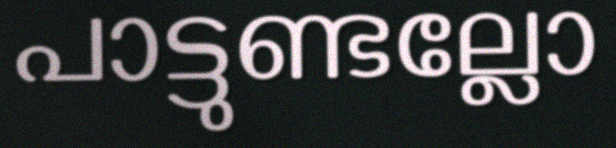
പാട്ടുണ്ടല്ലോ